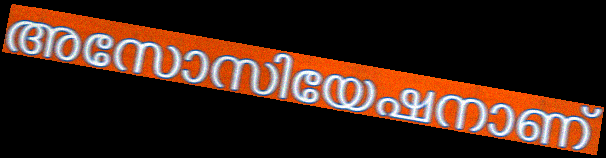
അസോസിയേഷനാണ്